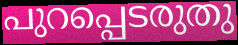
പുറപ്പെടരുതു